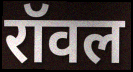
रॉवल